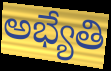
అభ్యేతి